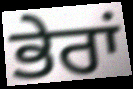
ਭੇਰਾਂ